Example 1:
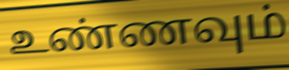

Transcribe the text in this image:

உண்ணவும்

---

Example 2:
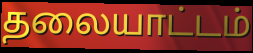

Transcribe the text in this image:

தலையாட்டம்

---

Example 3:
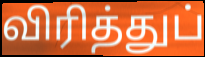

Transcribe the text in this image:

விரித்துப்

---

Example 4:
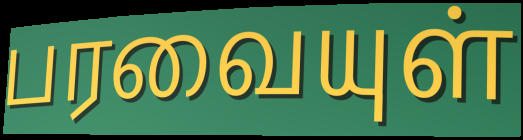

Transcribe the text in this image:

பரவையுள்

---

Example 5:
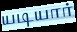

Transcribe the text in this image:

யடியார்